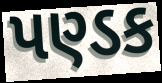
પણ્ડક